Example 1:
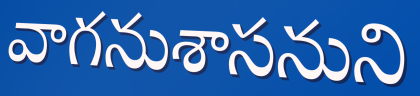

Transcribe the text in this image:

వాగనుశాసనుని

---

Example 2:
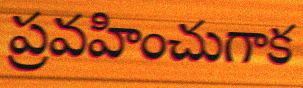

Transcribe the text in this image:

ప్రవహించుగాక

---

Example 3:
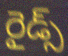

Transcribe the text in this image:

రైడ్స్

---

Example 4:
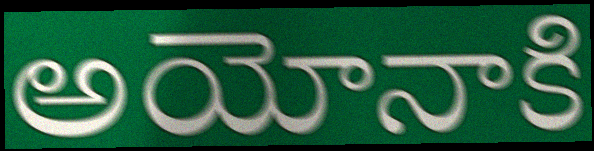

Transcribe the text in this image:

అయోనాకి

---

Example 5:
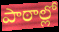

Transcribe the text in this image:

పాఠాల్లో